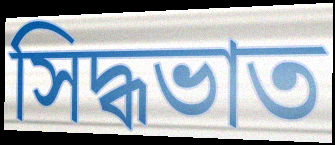
সিদ্ধভাত